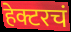
हेक्टरचं